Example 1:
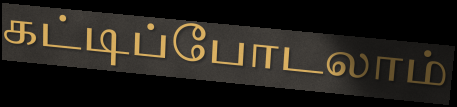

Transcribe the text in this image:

கட்டிப்போடலாம்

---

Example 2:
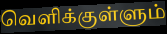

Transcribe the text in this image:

வெளிக்குள்ளும்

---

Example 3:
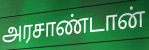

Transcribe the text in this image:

அரசாண்டான்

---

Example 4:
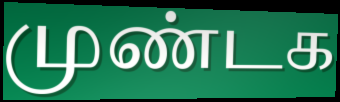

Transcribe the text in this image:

முண்டக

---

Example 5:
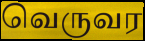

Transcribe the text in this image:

வெருவர